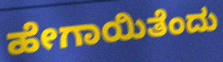
ಹೇಗಾಯಿತೆಂದು